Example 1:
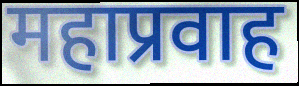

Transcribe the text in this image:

महाप्रवाह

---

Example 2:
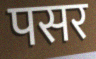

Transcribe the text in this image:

पसर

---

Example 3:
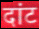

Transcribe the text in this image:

दांट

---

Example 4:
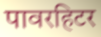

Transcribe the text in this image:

पावरहिटर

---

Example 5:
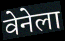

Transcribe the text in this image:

वेनेला